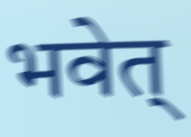
भवेत्